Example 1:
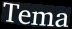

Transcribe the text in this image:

Tema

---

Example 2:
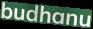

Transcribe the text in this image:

budhanu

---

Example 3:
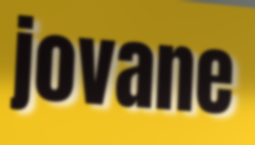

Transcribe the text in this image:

jovane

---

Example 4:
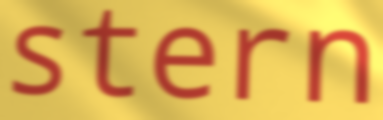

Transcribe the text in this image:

stern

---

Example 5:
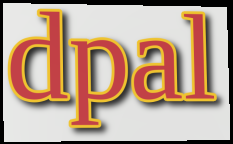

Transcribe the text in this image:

dpal